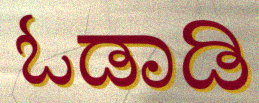
ಓಡಾಡಿ